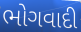
ભોગવાદી